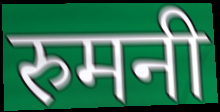
रुमनी